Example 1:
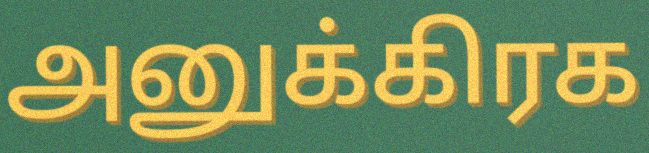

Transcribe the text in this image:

அனுக்கிரக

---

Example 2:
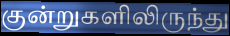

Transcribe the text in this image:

குன்றுகளிலிருந்து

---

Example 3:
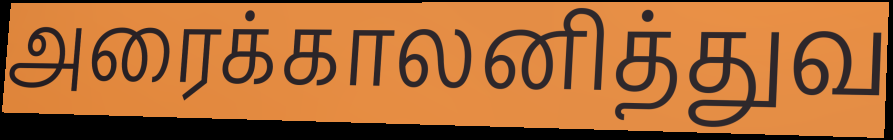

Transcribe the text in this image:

அரைக்காலனித்துவ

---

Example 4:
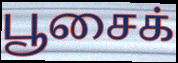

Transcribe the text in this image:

பூசைக்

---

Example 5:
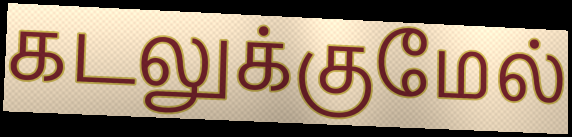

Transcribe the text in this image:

கடலுக்குமேல்